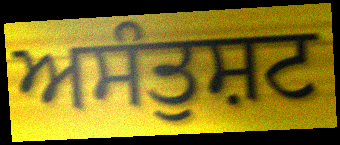
ਅਸੰਤੁਸ਼ਟ